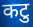
कटु